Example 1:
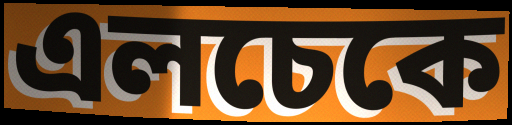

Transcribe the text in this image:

এলচেকে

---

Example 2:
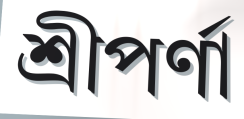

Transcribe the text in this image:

শ্রীপর্ণা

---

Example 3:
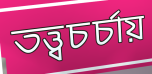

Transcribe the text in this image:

তত্ত্বচর্চায়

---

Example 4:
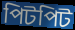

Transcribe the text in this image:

পিটপিট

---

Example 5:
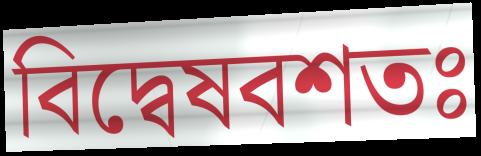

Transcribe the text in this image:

বিদ্বেষবশতঃ